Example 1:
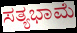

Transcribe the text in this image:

ಸತ್ಯಭಾಮೆ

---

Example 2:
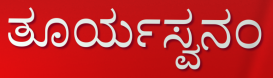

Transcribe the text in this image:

ತೂರ್ಯಸ್ವನಂ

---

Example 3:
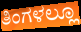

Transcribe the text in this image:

ತಿಂಗಳಲ್ಲೂ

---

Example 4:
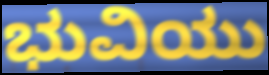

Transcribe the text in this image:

ಭುವಿಯು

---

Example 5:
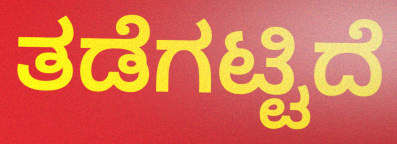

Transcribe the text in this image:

ತಡೆಗಟ್ಟಿದೆ